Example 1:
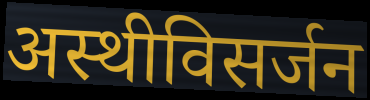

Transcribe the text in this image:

अस्थीविसर्जन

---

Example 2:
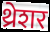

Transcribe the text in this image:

थ्रेशर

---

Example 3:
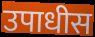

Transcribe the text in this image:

उपाधीस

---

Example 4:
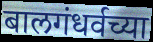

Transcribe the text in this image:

बालगंधर्वच्या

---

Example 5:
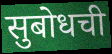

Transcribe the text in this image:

सुबोधची